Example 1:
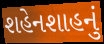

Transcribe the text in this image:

શહેનશાહનું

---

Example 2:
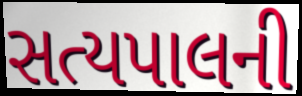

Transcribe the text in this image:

સત્યપાલની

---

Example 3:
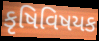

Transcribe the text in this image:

કૃષિવિષયક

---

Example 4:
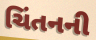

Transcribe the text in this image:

ચિંતનની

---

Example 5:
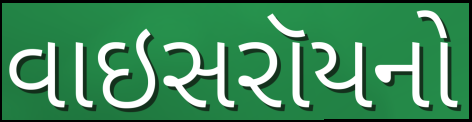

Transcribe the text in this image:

વાઇસરૉયનો